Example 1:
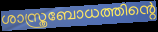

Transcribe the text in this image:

ശാസ്ത്രബോധത്തിന്റെ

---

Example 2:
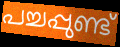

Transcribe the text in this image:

പച്ചപ്പുണ്ട്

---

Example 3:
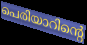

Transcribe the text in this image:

പെരിയാറിന്റെ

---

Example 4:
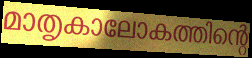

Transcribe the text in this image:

മാതൃകാലോകത്തിന്റെ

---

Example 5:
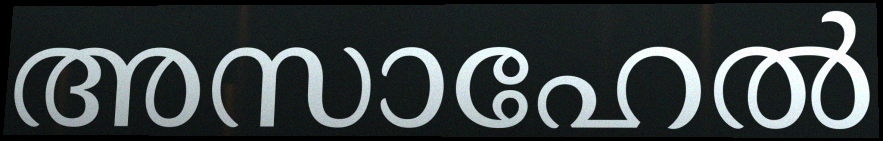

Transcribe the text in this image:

അസാഹേൽ